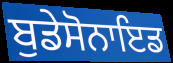
ਬੁਡੇਸੋਨਾਇਡ